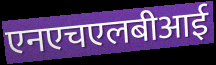
एनएचएलबीआई